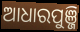
ଆଧାରପୁଞ୍ଜି